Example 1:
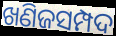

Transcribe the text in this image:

ଖଣିଜସମ୍ପଦ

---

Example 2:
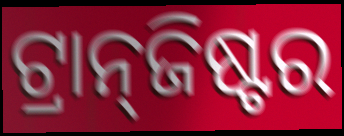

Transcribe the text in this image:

ଟ୍ରାନ୍‍ଜିଷ୍ଟର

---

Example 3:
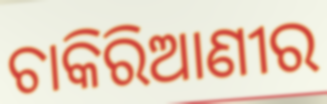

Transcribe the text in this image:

ଚାକିରିଆଣୀର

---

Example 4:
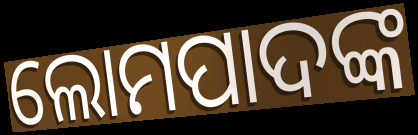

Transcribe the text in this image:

ଲୋମପାଦଙ୍କ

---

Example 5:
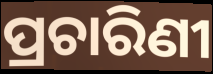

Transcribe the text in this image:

ପ୍ରଚାରିଣୀ